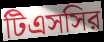
টিএসসির